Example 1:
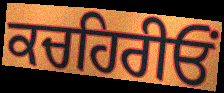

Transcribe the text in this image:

ਕਚਹਿਰੀਓਂ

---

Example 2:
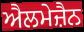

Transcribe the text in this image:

ਐਲਮੇਜ਼ੈਨ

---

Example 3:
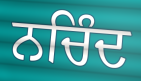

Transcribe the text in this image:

ਨਚਿੰਦ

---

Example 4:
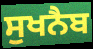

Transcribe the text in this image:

ਸੁਖਨੈਬ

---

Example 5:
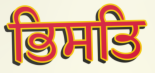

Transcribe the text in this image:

ਭਿਸਤਿ